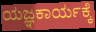
ಯಜ್ಞಕಾರ್ಯಕ್ಕೆ